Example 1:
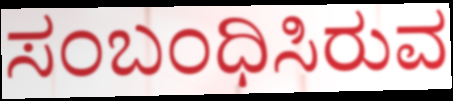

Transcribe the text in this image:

ಸಂಬಂಧಿಸಿರುವ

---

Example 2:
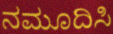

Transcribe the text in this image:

ನಮೂದಿಸಿ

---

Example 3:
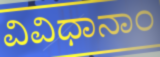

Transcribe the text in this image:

ವಿವಿಧಾನಾಂ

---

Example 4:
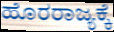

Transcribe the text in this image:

ಹೊರರಾಜ್ಯಕ್ಕೆ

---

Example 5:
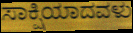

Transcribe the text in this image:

ಸಾಕ್ಷಿಯಾದವಳು